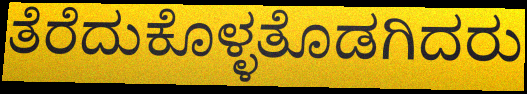
ತೆರೆದುಕೊಳ್ಳತೊಡಗಿದರು